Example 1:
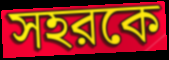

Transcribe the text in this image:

সহরকে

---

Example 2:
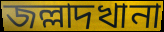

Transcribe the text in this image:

জল্লাদখানা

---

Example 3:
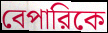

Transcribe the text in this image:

বেপারিকে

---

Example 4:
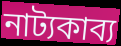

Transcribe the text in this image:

নাট্যকাব্য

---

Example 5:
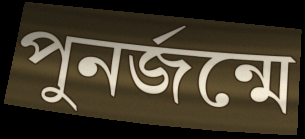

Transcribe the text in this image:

পুনর্জন্মে